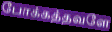
போக்கத்தவளே